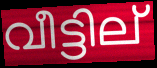
വീട്ടില്